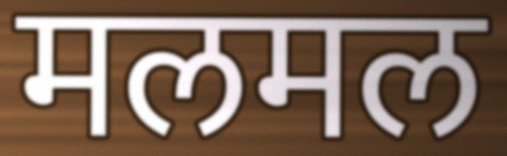
मलमल